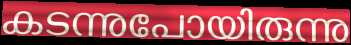
കടന്നുപോയിരുന്നു